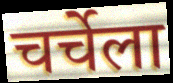
चर्चेला